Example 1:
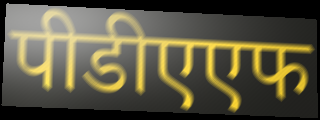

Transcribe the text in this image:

पीडीएएफ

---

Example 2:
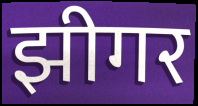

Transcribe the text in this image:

झीगर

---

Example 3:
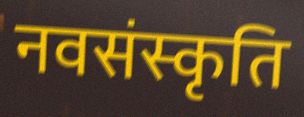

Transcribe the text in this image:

नवसंस्कृति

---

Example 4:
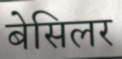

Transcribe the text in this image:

बेसिलर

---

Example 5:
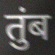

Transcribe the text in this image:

तुंब